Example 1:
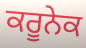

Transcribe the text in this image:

ਕਰੂਨੇਕ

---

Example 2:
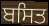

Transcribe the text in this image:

ਬਸਿਤ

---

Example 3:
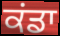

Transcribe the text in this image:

ਕਂਡਾ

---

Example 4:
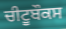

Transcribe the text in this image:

ਚੀਟੂਬੌਕਸ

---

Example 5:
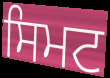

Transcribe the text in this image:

ਸਿਮਟ